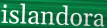
islandora